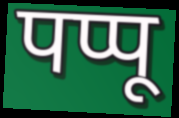
पप्पू